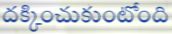
దక్కించుకుంటోంది